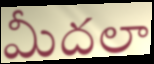
మీదలా